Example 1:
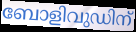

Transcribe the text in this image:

ബോളിവുഡിന്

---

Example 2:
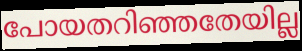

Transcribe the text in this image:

പോയതറിഞ്ഞതേയില്ല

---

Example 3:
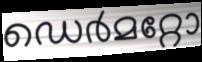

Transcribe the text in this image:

ഡെർമറ്റോ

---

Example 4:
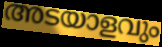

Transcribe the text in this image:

അടയാളവും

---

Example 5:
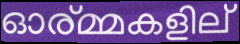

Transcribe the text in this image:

ഓര്മ്മകളില്